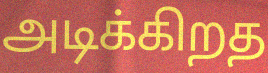
அடிக்கிறத